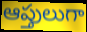
ఆప్తులుగా